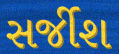
સર્જીશ